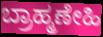
ಬ್ರಾಹ್ಮಣೇಹಿ